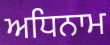
ਅਧਿਨਾਮ